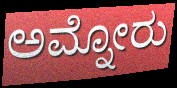
ಅಮ್ನೋರು